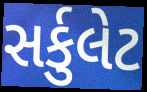
સર્કુલેટ